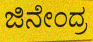
ಜಿನೇಂದ್ರ